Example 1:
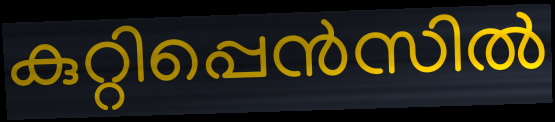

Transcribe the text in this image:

കുറ്റിപ്പെൻസിൽ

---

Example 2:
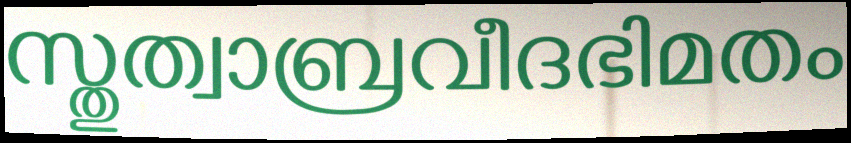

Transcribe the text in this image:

സ്തുത്വാബ്രവീദഭിമതം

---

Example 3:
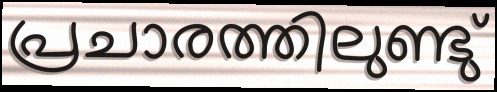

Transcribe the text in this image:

പ്രചാരത്തിലുണ്ടു്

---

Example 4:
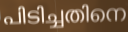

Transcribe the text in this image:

പിടിച്ചതിനെ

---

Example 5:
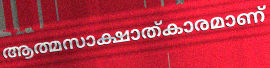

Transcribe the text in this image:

ആത്മസാക്ഷാത്കാരമാണ്